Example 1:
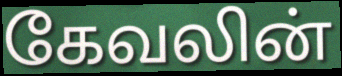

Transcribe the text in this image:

கேவலின்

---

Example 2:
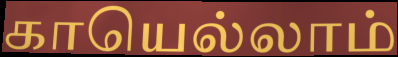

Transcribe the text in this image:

காயெல்லாம்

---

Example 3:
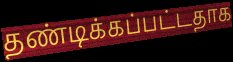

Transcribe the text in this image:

தண்டிக்கப்பட்டதாக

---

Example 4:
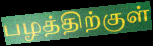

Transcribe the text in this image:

பழத்திற்குள்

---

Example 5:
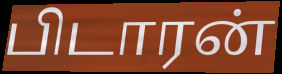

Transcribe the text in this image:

பிடாரன்